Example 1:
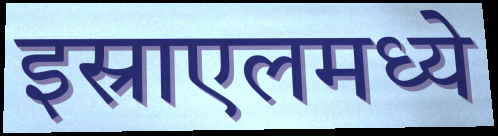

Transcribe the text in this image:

इस्राएलमध्ये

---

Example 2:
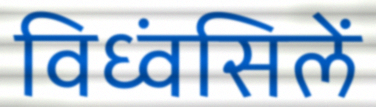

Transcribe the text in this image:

विध्वंसिलें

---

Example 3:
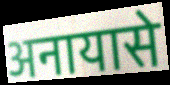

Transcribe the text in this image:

अनायासे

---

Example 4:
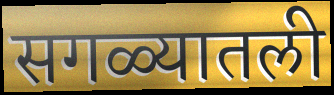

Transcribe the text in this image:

सगळ्यातली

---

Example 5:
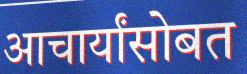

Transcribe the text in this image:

आचार्यांसोबत